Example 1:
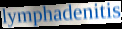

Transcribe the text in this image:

lymphadenitis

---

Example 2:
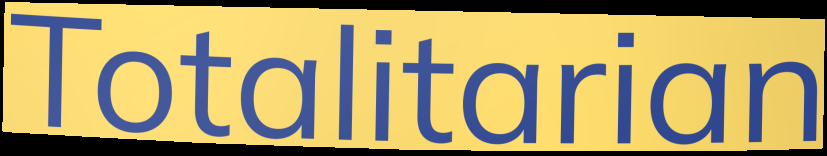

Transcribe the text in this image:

Totalitarian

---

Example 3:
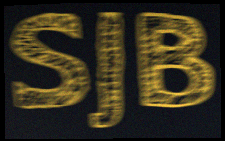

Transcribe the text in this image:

SJB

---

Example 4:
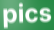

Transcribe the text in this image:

pics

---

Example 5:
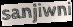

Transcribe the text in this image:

sanjiwni